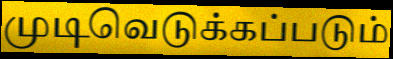
முடிவெடுக்கப்படும்